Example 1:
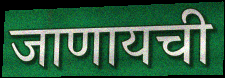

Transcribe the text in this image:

जाणायची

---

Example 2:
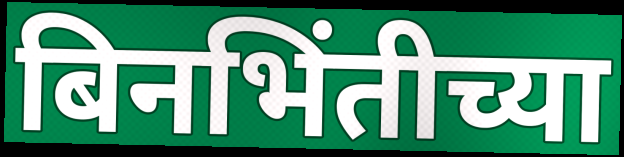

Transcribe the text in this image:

बिनभिंतीच्या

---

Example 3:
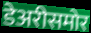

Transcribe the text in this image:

डेअरीसमोर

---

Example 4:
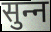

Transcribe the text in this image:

सुन्न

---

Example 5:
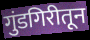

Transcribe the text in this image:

गुंडगिरीतून